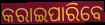
କରାଇପାରିବେ